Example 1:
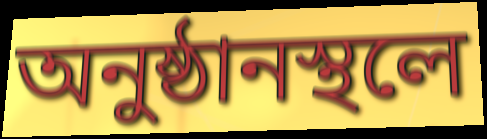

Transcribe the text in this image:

অনুষ্ঠানস্থলে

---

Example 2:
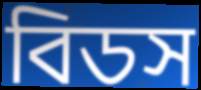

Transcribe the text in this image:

বিডস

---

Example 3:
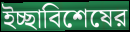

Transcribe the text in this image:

ইচ্ছাবিশেষের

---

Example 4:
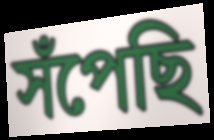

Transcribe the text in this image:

সঁপেছি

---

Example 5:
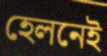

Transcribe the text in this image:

হেলনেই